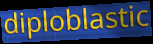
diploblastic